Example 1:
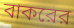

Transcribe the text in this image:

বাকরের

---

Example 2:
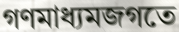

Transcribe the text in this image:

গণমাধ্যমজগতে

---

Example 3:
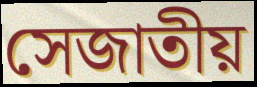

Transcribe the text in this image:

সেজাতীয়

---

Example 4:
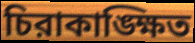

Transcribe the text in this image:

চিরাকাঙ্ক্ষিত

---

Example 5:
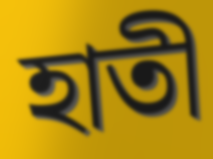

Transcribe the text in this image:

হাতী